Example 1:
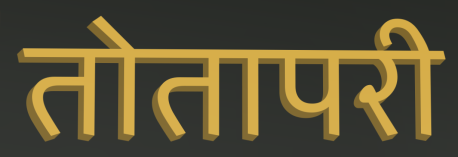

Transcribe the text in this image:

तोतापरी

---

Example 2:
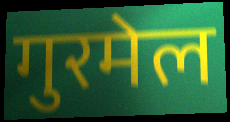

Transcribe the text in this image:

गुरमेल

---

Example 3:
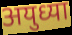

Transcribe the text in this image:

अयुध्या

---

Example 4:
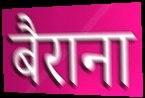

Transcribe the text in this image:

बैराना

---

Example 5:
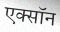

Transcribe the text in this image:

एक्सॉन